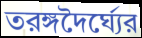
তরঙ্গদৈর্ঘ্যের